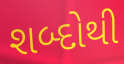
શબ્દોથી